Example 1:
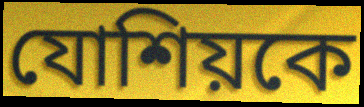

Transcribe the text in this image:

যোশিয়কে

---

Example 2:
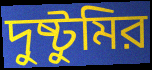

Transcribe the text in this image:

দুষ্টুমির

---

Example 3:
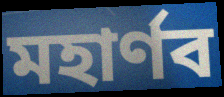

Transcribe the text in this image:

মহার্ণব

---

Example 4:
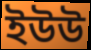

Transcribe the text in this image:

ইউউ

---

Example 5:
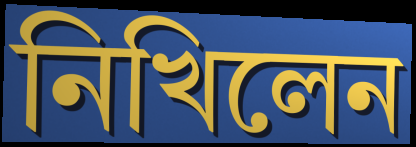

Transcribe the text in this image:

নিখিলেন